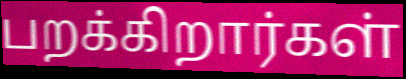
பறக்கிறார்கள்